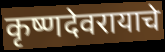
कृष्णदेवरायाचे